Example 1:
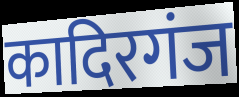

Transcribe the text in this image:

कादिरगंज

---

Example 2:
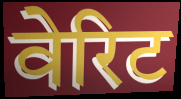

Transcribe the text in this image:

वेरिट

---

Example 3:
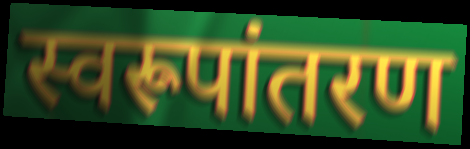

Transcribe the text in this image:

स्वरूपांतरण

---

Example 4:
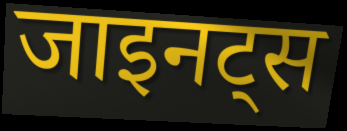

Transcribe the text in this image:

जाइनट्स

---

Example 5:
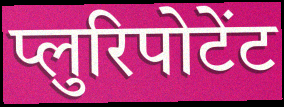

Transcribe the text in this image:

प्लुरिपोटेंट